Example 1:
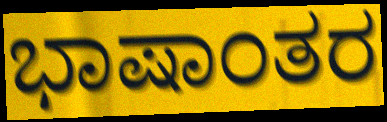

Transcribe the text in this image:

ಭಾಷಾಂತರ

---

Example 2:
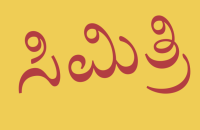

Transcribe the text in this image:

ಸಿಮಿತ್ರಿ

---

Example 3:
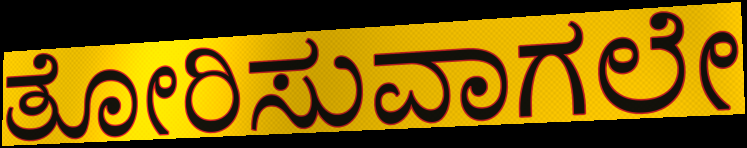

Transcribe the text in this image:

ತೋರಿಸುವಾಗಲೇ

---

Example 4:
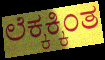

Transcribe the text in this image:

ಲೆಕ್ಕಕ್ಕಿಂತ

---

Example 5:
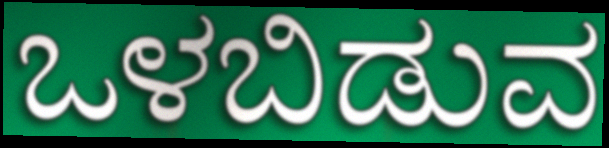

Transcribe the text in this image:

ಒಳಬಿಡುವ